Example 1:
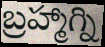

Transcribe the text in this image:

బ్రహ్మాగ్ని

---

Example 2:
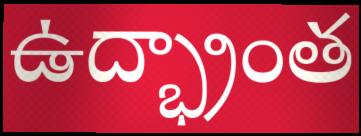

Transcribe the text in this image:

ఉద్భ్రాంత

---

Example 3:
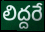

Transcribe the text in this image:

లిద్దరే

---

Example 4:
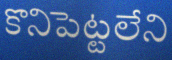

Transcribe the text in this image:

కొనిపెట్టలేని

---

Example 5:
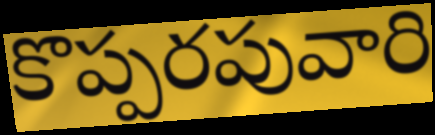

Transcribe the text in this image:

కొప్పరపువారి